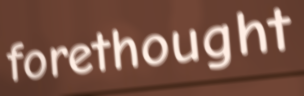
forethought